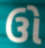
ઉો